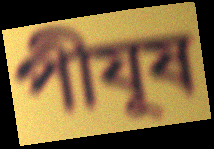
পীযূষ